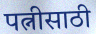
पत्नीसाठी